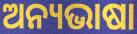
ଅନ୍ୟଭାଷା